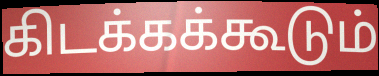
கிடக்கக்கூடும்